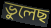
ভুলেছ